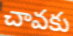
చావకు